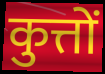
कुत्तों